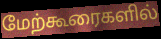
மேற்கூரைகளில்